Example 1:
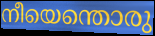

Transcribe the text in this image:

നീയെന്തൊരു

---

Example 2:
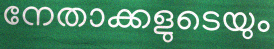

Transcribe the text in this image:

നേതാക്കളുടെയും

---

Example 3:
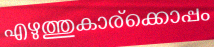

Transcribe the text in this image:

എഴുത്തുകാര്ക്കൊപ്പം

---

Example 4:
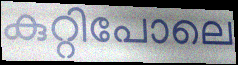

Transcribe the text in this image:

കുറ്റിപോലെ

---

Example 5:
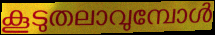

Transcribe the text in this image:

കൂടുതലാവുമ്പോൾ